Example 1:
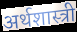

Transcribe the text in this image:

अर्थशास्त्री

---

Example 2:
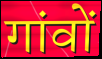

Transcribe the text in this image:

गांवों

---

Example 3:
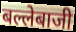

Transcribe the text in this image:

बल्लेबाजी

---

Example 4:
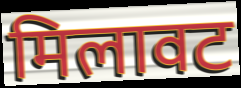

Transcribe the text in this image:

मिलावट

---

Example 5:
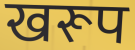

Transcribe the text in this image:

खरूप